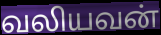
வலியவன்